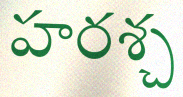
హరశ్చ